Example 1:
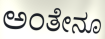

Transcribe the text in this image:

ಅಂತೇನೂ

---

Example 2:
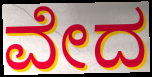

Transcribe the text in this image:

ವೇದ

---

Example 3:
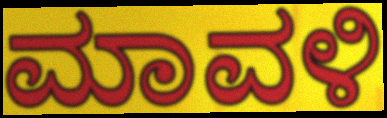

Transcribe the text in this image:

ಮಾವಳಿ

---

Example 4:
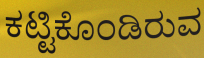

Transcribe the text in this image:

ಕಟ್ಟಿಕೊಂಡಿರುವ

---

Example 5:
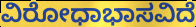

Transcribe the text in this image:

ವಿರೋಧಾಭಾಸವಿದೆ